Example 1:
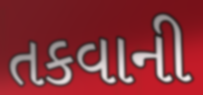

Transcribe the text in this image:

તકવાની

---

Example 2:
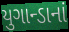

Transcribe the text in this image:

યુગાન્ડાનાં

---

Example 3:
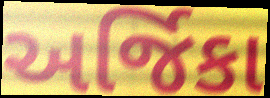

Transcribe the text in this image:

અર્જિકા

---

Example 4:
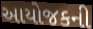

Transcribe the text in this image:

આયોજકની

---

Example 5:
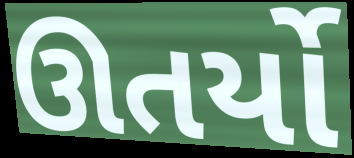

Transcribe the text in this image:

ઊતર્યો